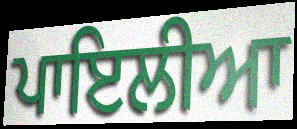
ਪਾਇਲੀਆ